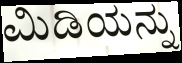
ಮಿಡಿಯನ್ನು